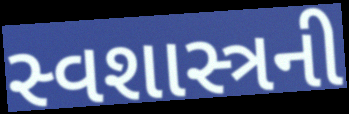
સ્વશાસ્ત્રની